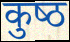
कुष्‍ठ